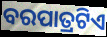
ବରପାତ୍ରଟିଏ